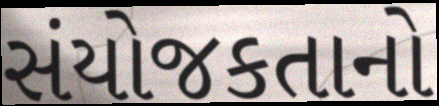
સંયોજકતાનો